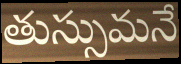
తుస్సుమనే